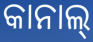
କାନାଲ୍